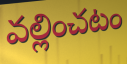
వల్లించటం